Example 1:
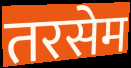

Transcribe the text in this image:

तरसेम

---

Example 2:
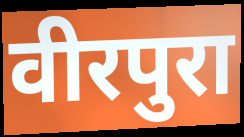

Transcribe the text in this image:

वीरपुरा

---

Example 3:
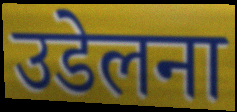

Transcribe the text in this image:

उडेलना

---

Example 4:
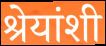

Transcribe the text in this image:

श्रेयांशी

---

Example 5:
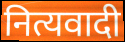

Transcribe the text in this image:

नित्यवादी